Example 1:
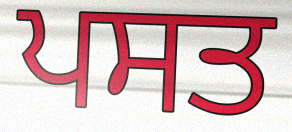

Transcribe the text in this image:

ਪਸਤ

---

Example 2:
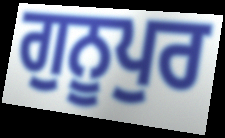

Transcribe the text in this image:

ਗੁਨੂਪੁਰ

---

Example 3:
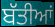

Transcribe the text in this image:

ਬੱਤੀਆਂ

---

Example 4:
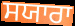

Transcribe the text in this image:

ਸਯਾਰਾ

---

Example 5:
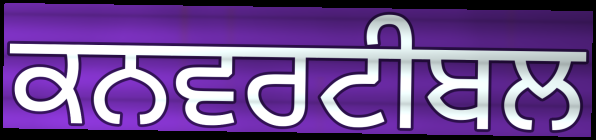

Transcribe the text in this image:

ਕਨਵਰਟੀਬਲ